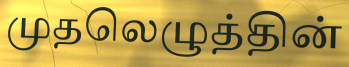
முதலெழுத்தின்